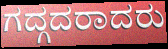
ಗದ್ಗದರಾದರು